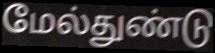
மேல்துண்டு